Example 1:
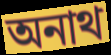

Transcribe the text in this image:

অনাথ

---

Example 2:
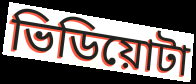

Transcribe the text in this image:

ভিডিয়োটা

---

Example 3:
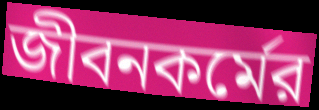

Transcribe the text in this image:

জীবনকর্মের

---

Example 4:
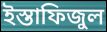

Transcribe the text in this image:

ইস্তাফিজুল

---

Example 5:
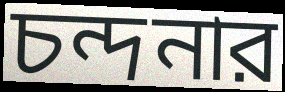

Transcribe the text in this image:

চন্দনার